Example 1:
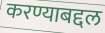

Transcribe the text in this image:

करण्याबद्दल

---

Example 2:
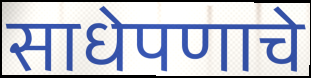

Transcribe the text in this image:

साधेपणाचे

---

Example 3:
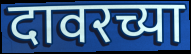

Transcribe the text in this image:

दावरच्या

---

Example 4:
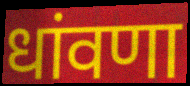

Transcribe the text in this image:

धांवणा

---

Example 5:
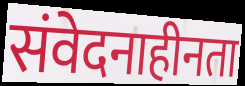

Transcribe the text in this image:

संवेदनाहीनता